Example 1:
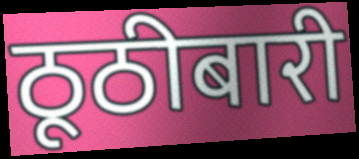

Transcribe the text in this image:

ठूठीबारी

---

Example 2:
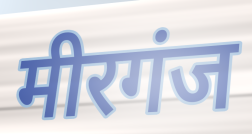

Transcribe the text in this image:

मीरगंज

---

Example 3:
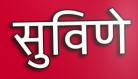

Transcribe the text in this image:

सुविणे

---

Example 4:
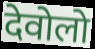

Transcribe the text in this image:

देवोलो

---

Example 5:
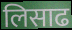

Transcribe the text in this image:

लिसाढ